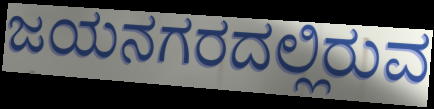
ಜಯನಗರದಲ್ಲಿರುವ